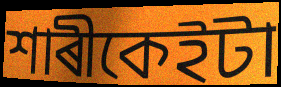
শাৰীকেইটা